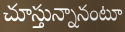
చూస్తున్నానంటూ